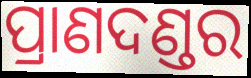
ପ୍ରାଣଦଣ୍ଡର